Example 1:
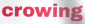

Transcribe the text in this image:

crowing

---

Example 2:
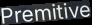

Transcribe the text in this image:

Premitive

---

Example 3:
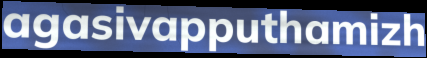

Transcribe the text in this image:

agasivapputhamizh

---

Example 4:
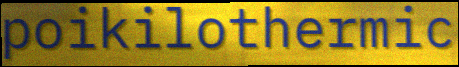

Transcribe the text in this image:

poikilothermic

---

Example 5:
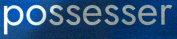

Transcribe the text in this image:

possesser